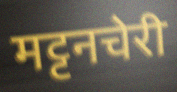
मट्टनचेरी